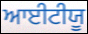
ਆਈਟੀਯੂ